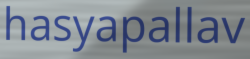
hasyapallav